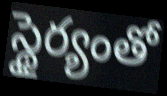
స్థైర్యంతో